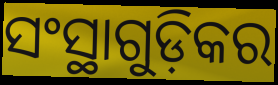
ସଂସ୍ଥାଗୁଡ଼ିକର